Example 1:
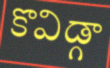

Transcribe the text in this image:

కొవిడ్గా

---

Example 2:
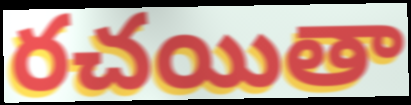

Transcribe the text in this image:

రచయితా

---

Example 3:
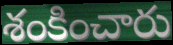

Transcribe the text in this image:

శంకించారు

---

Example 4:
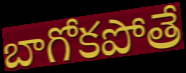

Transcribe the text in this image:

బాగోకపోతే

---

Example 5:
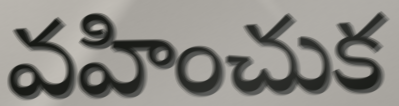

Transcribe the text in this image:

వహించుక